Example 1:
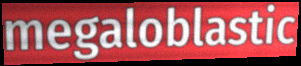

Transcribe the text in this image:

megaloblastic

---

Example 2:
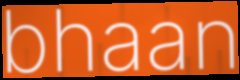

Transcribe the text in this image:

bhaan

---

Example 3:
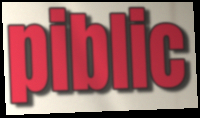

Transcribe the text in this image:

piblic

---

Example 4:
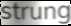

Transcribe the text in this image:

strung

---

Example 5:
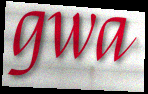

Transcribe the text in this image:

gwa